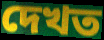
দেখত